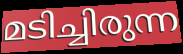
മടിച്ചിരുന്ന